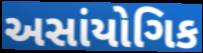
અસાંયોગિક